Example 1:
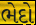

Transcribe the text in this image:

ભેદો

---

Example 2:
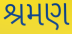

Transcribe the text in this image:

શ્રમણ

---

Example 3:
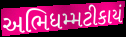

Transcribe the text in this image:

અભિધમ્મટીકાયં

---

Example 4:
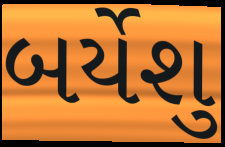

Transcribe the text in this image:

બર્યેશુ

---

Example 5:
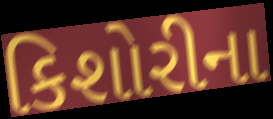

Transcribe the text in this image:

કિશોરીના